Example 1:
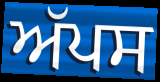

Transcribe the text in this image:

ਅੱਪਸ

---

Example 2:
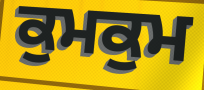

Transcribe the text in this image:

ਕੁਮਕੁਮ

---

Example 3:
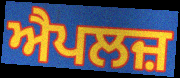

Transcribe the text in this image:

ਐਪਲਜ਼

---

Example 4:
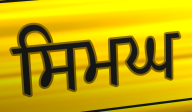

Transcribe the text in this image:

ਸਿਮਘ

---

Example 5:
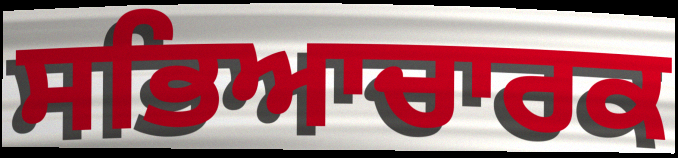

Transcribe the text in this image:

ਸਭਿਆਚਾਰਕ